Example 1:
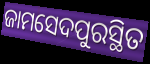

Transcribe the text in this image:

ଜାମସେଦପୁରସ୍ଥିତ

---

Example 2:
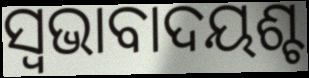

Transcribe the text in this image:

ସ୍ଵଭାବାଦୟଶ୍ଚ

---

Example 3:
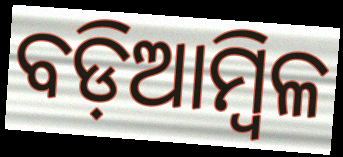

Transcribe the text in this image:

ବଡ଼ିଆମ୍ବିଳ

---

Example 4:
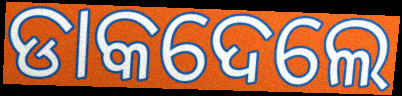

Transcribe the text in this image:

ଡାକଦେଲେ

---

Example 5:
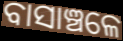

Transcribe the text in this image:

ବାସାଞ୍ଚଳେ